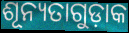
ଶୂନ୍ୟତାଗୁଡ଼ାକ